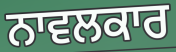
ਨਾਵਲਕਾਰ